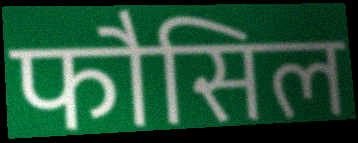
फौसिल